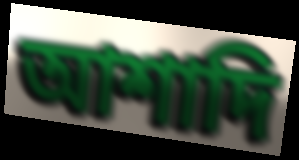
আশাদি